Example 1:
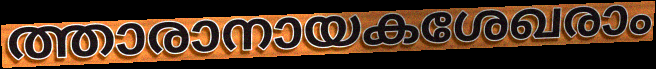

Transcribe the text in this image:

ത്താരാനായകശേഖരാം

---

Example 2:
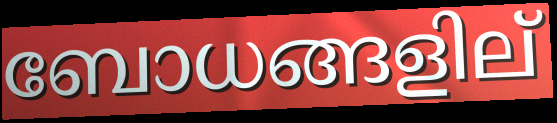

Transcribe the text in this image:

ബോധങ്ങളില്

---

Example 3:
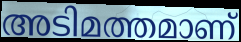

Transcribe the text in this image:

അടിമത്തമാണ്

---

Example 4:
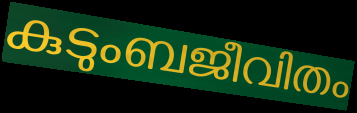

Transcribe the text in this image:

കുടുംബജീവിതം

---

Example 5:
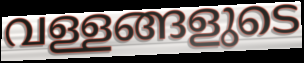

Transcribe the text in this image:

വള്ളങ്ങളുടെ